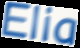
Elia